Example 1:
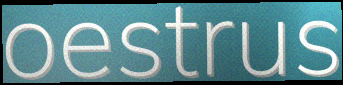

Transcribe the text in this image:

oestrus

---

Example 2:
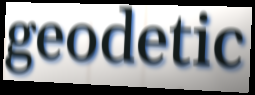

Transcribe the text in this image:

geodetic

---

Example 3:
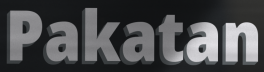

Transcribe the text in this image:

Pakatan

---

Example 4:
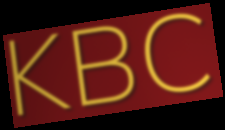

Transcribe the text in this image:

KBC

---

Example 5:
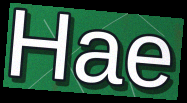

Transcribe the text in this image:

Hae